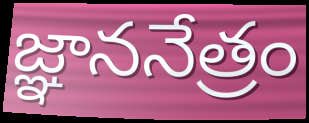
జ్ఞాననేత్రం